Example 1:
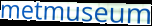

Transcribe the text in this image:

metmuseum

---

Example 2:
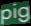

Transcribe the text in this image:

pig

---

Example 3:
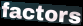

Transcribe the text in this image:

factors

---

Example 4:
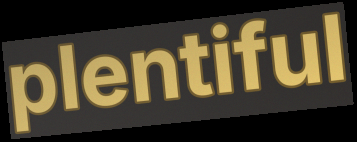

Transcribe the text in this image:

plentiful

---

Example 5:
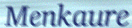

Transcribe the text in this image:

Menkaure